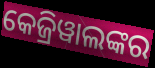
କେଜ୍ରିୱାଲଙ୍କର